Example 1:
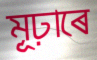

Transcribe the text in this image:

মূঢ়াৰে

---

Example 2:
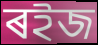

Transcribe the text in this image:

ৰইজ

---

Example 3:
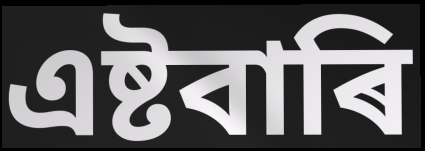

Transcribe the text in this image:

এষ্টবাৰি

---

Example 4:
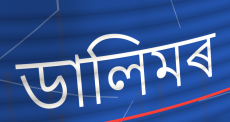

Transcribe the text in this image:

ডালিমৰ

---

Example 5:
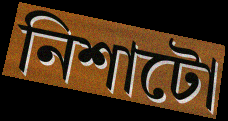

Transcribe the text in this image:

নিশাটো